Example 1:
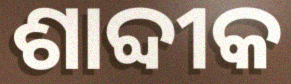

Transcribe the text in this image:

ଶାବ୍ଦୀକ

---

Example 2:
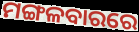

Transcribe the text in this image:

ମଙ୍ଗଳବାରରେ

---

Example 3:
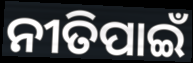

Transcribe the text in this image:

ନୀତିପାଇଁ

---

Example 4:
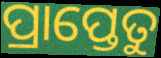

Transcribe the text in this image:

ପ୍ରାପ୍ତେତୁ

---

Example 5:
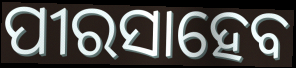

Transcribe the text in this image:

ପୀରସାହେବ